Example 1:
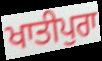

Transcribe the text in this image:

ਖਾਤੀਪੁਰਾ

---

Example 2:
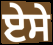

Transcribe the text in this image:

ਏਸੇ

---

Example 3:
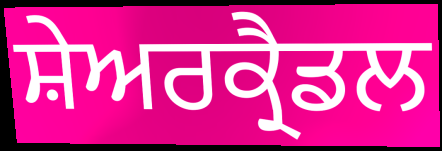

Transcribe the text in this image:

ਸ਼ੇਅਰਕ੍ਰੈਡਲ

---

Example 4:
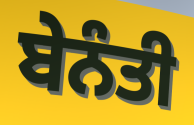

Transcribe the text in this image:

ਬੇਨੰਤੀ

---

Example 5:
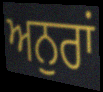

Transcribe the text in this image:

ਅਨੁਰਾਂ